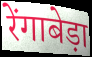
रेंगाबेड़ा